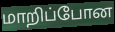
மாறிப்போன